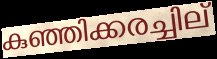
കുഞ്ഞിക്കരച്ചില്